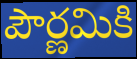
పౌర్ణమికి